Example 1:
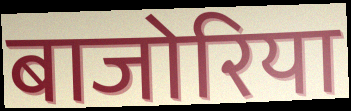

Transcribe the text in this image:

बाजोरिया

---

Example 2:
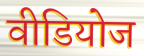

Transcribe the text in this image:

वीडियोज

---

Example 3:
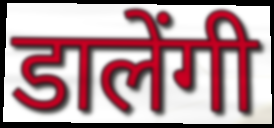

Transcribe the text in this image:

डालेंगी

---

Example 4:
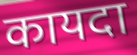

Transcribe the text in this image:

कायदा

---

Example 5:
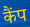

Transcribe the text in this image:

कैंप